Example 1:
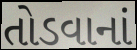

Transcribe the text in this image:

તોડવાનાં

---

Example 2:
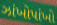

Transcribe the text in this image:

ઝાંખોપાંખો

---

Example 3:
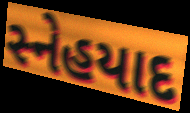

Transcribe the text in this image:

સ્નેહયાદ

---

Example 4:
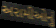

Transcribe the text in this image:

અરામીઓનું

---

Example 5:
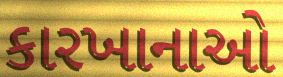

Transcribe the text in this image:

કારખાનાઓ